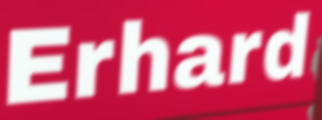
Erhard